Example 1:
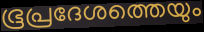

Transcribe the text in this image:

ഭൂപ്രദേശത്തെയും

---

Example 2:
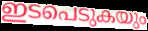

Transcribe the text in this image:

ഇടപെടുകയും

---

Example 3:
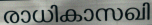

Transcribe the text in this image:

രാധികാസഖി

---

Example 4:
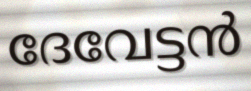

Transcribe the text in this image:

ദേവേട്ടൻ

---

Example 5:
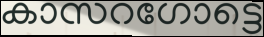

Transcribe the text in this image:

കാസറഗോട്ടെ